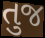
તુજ